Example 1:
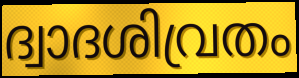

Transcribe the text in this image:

ദ്വാദശിവ്രതം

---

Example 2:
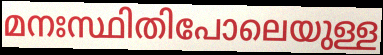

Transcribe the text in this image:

മനഃസ്ഥിതിപോലെയുള്ള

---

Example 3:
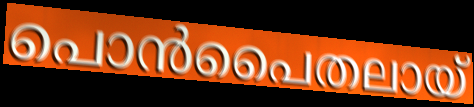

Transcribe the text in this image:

പൊൻപൈതലായ്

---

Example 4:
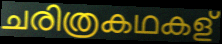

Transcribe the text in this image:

ചരിത്രകഥകള്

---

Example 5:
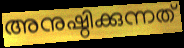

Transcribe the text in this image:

അനുഷ്ഠിക്കുന്നത്